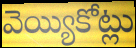
వెయ్యికోట్లు